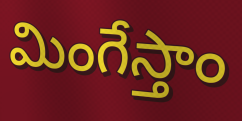
మింగేస్తాం